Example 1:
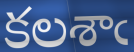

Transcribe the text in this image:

కలశాఁ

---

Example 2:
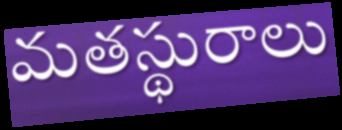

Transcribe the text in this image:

మతస్థురాలు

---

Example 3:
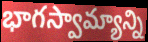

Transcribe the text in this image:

భాగస్వామ్యాన్ని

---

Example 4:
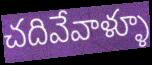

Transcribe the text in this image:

చదివేవాళ్ళూ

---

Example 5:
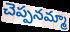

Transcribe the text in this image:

చెప్పనమ్మా